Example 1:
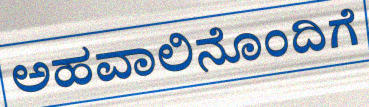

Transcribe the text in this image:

ಅಹವಾಲಿನೊಂದಿಗೆ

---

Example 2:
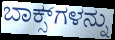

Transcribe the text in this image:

ಬಾಕ್ಸ್‌ಗಳನ್ನು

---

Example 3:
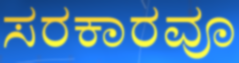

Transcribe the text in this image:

ಸರಕಾರವೂ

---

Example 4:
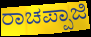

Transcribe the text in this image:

ರಾಚಪ್ಪಾಜಿ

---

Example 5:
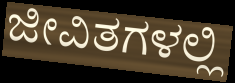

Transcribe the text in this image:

ಜೀವಿತಗಳಲ್ಲಿ